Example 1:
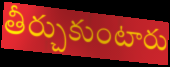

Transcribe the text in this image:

తీర్చుకుంటారు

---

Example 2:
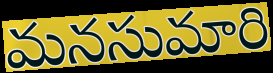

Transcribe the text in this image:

మనసుమారి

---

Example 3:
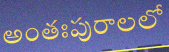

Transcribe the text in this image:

అంతఃపురాలలో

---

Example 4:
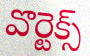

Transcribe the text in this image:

వొర్టెక్స్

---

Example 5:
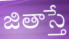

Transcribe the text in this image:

జితాస్తే